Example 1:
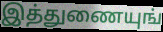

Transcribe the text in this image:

இத்துணையுங்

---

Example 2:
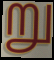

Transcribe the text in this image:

று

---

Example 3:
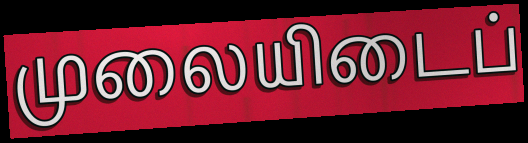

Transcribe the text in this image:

முலையிடைப்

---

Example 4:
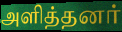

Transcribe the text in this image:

அளித்தனர்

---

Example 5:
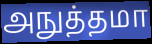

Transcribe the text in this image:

அநுத்தமா